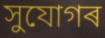
সুযোগৰ